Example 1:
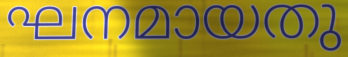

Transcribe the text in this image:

ഘനമായതു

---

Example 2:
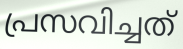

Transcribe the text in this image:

പ്രസവിച്ചത്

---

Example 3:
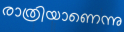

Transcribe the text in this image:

രാത്രിയാണെന്നു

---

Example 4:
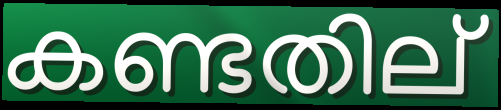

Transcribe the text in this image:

കണ്ടതില്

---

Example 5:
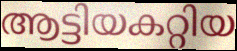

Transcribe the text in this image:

ആട്ടിയകറ്റിയ